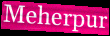
Meherpur